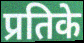
प्रतिके